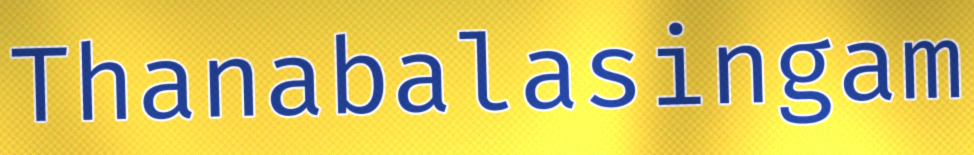
Thanabalasingam